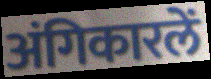
अंगिकारलें